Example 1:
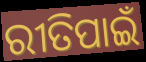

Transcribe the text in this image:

ରୀତିପାଇଁ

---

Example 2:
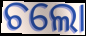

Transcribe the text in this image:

ଚଲୋ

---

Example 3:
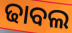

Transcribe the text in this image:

ଢାବଲ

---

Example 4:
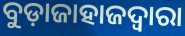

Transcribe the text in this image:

ବୁଡ଼ାଜାହାଜଦ୍ୱାରା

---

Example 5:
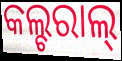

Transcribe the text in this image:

କଲ୍ଚରାଲ୍